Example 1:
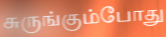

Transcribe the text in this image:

சுருங்கும்போது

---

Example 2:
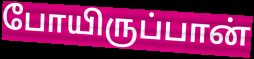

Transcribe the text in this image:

போயிருப்பான்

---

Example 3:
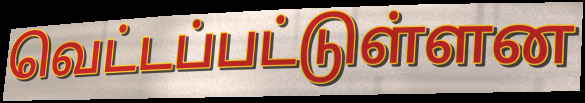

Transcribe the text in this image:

வெட்டப்பட்டுள்ளன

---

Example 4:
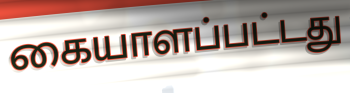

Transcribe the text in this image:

கையாளப்பட்டது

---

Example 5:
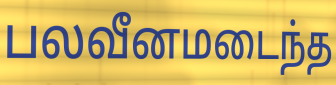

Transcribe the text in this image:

பலவீனமடைந்த